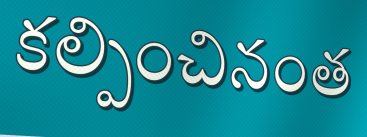
కల్పించినంత